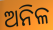
ଅନିଳ